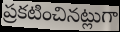
ప్రకటించినట్లుగా